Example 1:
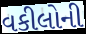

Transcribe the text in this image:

વકીલોની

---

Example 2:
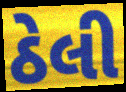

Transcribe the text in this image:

ઠેલી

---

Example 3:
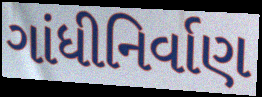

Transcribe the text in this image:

ગાંધીનિર્વાણ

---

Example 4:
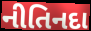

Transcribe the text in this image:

નીતિનદા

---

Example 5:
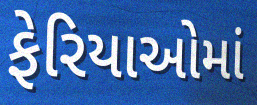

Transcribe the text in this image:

ફેરિયાઓમાં